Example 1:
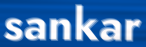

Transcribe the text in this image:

sankar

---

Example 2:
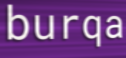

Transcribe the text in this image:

burqa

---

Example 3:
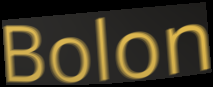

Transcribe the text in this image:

Bolon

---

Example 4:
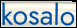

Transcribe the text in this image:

kosalo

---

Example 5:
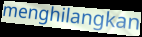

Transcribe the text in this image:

menghilangkan